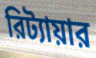
রিট্যায়ার